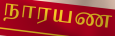
நாரயண